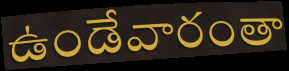
ఉండేవారంతా